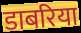
डाबरिया